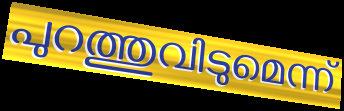
പുറത്തുവിടുമെന്ന്